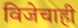
विजेचाही